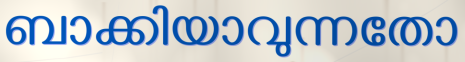
ബാക്കിയാവുന്നതോ